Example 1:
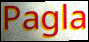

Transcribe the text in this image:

Pagla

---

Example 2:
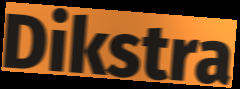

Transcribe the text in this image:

Dikstra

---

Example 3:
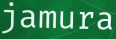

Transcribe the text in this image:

jamura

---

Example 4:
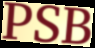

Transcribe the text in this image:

PSB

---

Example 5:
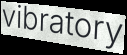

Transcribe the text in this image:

vibratory